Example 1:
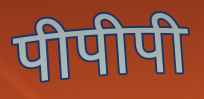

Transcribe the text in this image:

पीपीपी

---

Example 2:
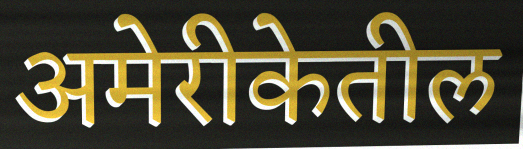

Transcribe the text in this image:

अमेरीकेतील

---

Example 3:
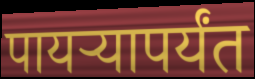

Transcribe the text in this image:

पायऱ्यापर्यंत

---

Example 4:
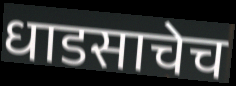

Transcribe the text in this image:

धाडसाचेच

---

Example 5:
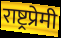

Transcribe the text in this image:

राष्ट्रप्रेमी